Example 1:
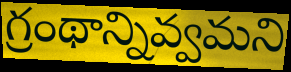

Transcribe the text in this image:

గ్రంథాన్నివ్వమని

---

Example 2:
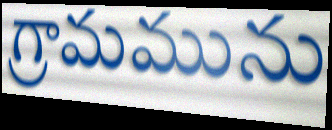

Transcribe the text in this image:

గ్రామమును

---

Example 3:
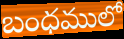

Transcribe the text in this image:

బంధములో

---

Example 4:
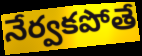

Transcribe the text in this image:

నేర్వకపోతే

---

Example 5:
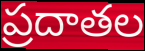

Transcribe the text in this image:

ప్రదాతల